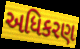
અધિકરણ